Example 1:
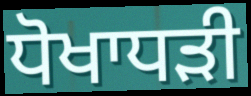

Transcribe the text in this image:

ਧੋਖਾਧਡ਼ੀ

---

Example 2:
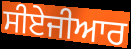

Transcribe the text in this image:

ਸੀਏਜੀਆਰ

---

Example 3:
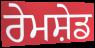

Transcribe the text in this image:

ਰੇਮਸ਼ੇਡ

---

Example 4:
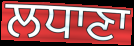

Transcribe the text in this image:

ਲਧਾਣਾ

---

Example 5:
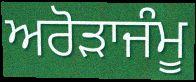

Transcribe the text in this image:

ਅਰੋੜਾਜੰਮੂ